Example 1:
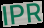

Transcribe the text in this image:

IPR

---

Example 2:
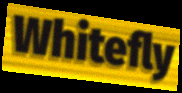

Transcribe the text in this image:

Whitefly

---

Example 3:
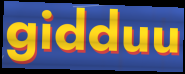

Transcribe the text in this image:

gidduu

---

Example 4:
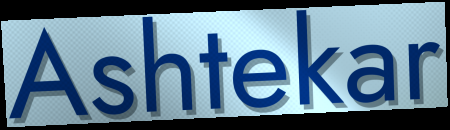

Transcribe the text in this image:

Ashtekar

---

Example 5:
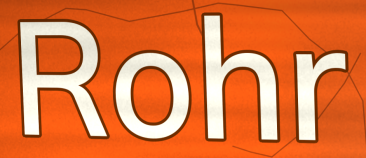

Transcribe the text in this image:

Rohr